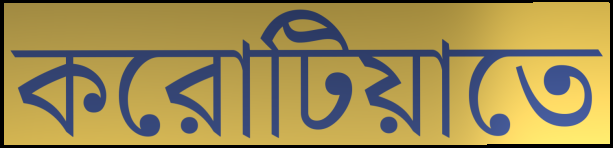
করোটিয়াতে